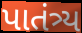
પાતંત્ર્ય